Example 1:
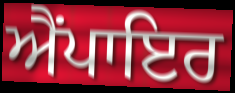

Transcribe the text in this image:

ਐੰਪਾਇਰ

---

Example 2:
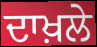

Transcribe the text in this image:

ਦਾਖ਼ਲੇ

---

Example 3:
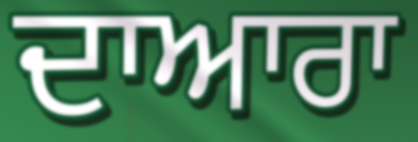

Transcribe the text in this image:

ਦਾਆਰਾ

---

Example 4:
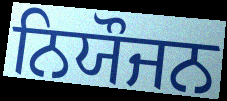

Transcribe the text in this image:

ਨਿਯੌਜਨ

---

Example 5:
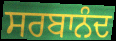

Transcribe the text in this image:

ਸਰਬਾਨੰਦ